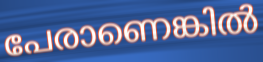
പേരാണെങ്കിൽ